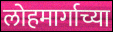
लोहमार्गाच्या